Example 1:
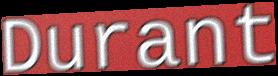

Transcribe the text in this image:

Durant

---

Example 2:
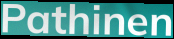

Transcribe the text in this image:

Pathinen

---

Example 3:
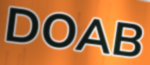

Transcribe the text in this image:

DOAB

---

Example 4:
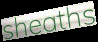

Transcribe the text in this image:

sheaths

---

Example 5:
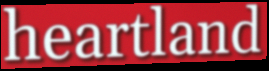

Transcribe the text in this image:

heartland